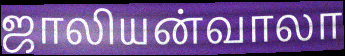
ஜாலியன்வாலா